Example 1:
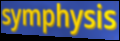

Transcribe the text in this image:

symphysis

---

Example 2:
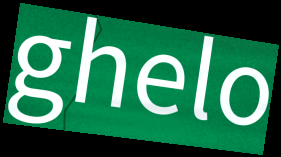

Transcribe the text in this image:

ghelo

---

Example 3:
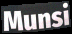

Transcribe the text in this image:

Munsi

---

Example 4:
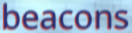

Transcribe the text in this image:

beacons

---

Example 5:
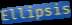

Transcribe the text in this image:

Ellipsis